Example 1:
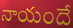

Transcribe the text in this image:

నాయందే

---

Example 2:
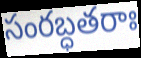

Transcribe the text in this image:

సంరబ్ధతరాః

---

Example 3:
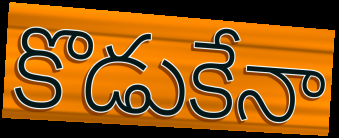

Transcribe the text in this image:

కొడుకేనా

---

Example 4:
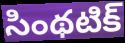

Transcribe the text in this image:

సింథటిక్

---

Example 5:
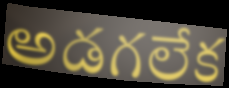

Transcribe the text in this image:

అడగలేక